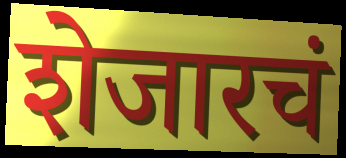
शेजारचं